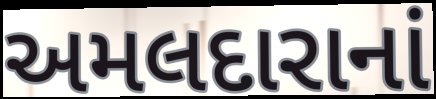
અમલદારાનાં